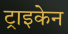
ट्राइकेन